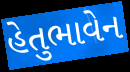
હેતુભાવેન